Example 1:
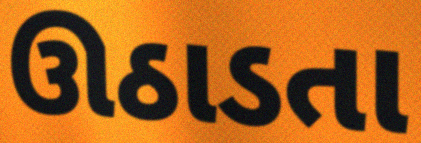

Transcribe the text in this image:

ઊઠાડતા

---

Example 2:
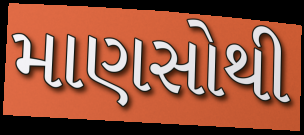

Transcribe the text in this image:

માણસોથી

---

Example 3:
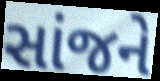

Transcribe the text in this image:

સાંજને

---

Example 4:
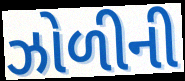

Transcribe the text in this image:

ઝોળીની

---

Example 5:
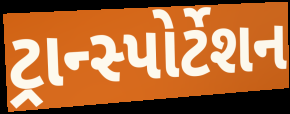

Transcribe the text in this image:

ટ્રાન્સ્પોર્ટેશન